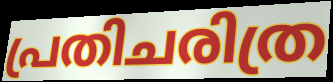
പ്രതിചരിത്ര